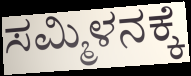
ಸಮ್ಮಿಳನಕ್ಕೆ